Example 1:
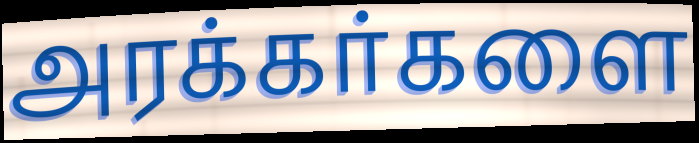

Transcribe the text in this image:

அரக்கர்களை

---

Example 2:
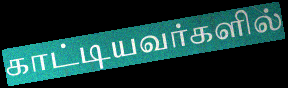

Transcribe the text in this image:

காட்டியவர்களில்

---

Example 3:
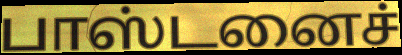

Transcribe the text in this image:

பாஸ்டனைச்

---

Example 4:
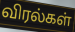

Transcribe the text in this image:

விரல்கள்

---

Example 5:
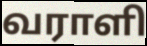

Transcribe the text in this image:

வராளி